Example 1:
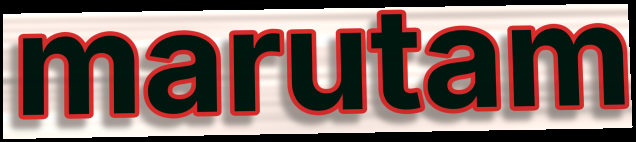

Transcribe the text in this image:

marutam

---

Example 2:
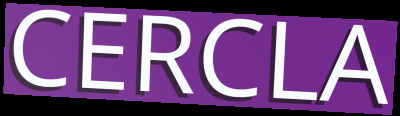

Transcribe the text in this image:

CERCLA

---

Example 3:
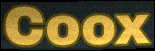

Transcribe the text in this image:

Coox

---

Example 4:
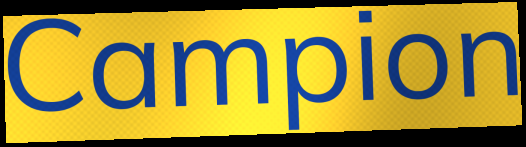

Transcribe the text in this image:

Campion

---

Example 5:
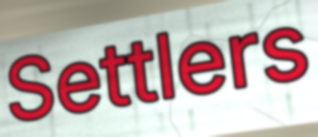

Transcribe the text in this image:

Settlers